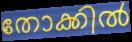
തോക്കിൽ